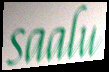
saalu